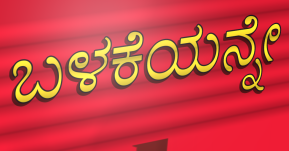
ಬಳಕೆಯನ್ನೇ